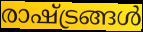
രാഷ്ട്രങ്ങൾ